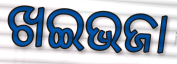
ଖଇଭଜା